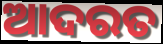
ଆଦରତ